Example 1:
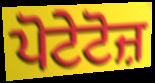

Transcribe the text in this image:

ਪੋਟੇਟੋਜ਼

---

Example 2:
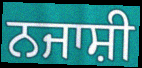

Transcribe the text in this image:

ਨਜਾਸ਼ੀ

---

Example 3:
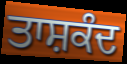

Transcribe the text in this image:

ਤਾਸ਼ਕੰਦ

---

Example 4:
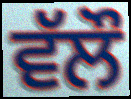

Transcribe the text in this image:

ਵੱਲੌ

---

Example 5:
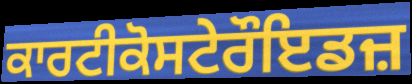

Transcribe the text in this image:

ਕਾਰਟੀਕੋਸਟੇਰੌਇਡਜ਼